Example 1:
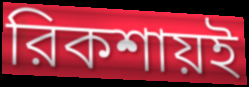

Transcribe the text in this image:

রিকশায়ই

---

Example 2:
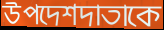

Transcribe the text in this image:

উপদেশদাতাকে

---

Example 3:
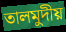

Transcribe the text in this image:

তালমুদীয়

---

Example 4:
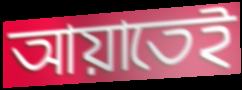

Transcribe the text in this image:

আয়াতেই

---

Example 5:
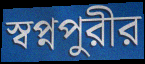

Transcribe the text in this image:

স্বপ্নপুরীর